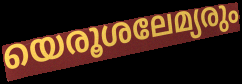
യെരൂശലേമ്യരും